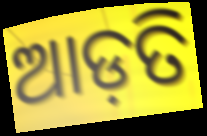
ଆଡ଼ତି